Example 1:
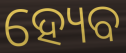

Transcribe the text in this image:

ହ୍ୟେବ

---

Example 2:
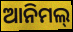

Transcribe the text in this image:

ଆନିମଲ୍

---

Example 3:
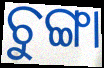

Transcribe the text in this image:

ଚୁଙ୍ଗା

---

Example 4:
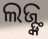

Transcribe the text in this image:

ଲଜ୍ଙ୍କ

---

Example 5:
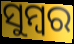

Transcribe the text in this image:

ସୁମ୍ବର